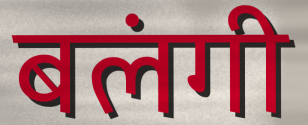
बलंगी